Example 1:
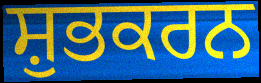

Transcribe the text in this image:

ਸ਼ੁਭਕਰਨ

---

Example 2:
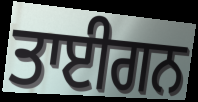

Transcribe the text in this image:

ਤਾਈਗਨ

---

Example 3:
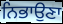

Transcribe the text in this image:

ਨਿਭਾਉਣਾ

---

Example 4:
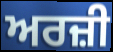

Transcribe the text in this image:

ਅਰਜ਼ੀ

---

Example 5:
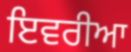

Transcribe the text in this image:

ਇਵਰੀਆ